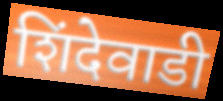
शिंदेवाडी